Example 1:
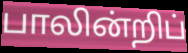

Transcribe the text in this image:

பாலின்றிப்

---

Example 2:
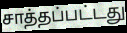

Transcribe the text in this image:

சாத்தப்பட்டது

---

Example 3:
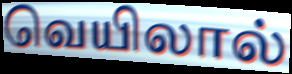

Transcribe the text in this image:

வெயிலால்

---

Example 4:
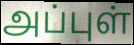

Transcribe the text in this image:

அப்புள்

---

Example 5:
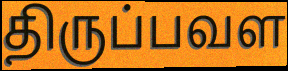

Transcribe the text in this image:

திருப்பவள